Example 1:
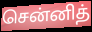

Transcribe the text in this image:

சென்னித்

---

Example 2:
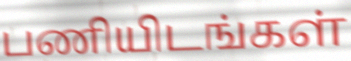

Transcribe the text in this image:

பணியிடங்கள்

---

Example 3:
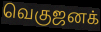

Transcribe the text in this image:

வெகுஜனக்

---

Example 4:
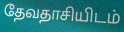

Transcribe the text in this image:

தேவதாசியிடம்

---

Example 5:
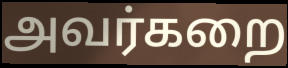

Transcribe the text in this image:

அவர்கறை